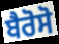
ਬੈਰੋਸੋ